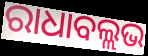
ରାଧାବଲ୍ଲଭ